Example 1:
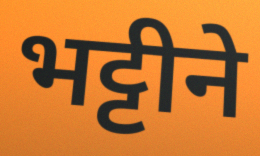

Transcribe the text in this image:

भट्टीने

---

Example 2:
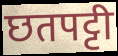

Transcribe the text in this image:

छतपट्टी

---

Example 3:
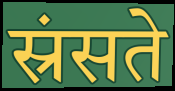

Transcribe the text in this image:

स्रंसते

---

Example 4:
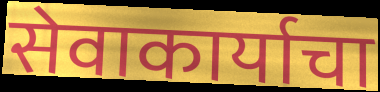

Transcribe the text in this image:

सेवाकार्याचा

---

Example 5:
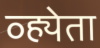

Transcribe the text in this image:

व्ह्येता